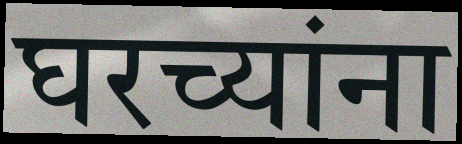
घरच्‍यांना